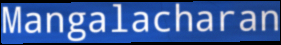
Mangalacharan